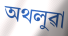
অথলুৱা